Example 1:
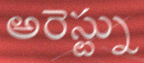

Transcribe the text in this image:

అరెస్ట్ను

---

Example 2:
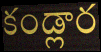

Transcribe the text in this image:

కండ్లార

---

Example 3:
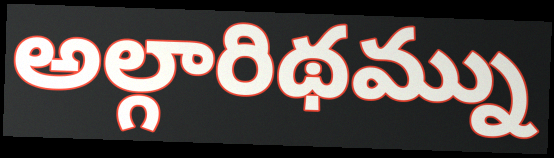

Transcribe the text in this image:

అల్గారిథమ్ను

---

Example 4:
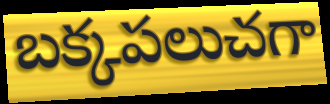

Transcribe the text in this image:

బక్కపలుచగా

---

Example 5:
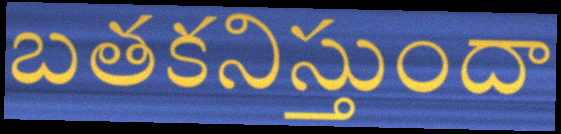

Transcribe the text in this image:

బతకనిస్తుందా